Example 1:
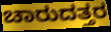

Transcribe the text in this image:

ಚಾರುದತ್ತರ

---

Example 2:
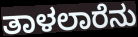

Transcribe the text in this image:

ತಾಳಲಾರೆನು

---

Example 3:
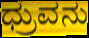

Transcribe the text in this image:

ಧ್ರುವನು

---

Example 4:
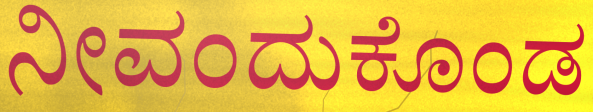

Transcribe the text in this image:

ನೀವಂದುಕೊಂಡ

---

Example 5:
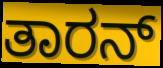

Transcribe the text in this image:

ತಾರನ್